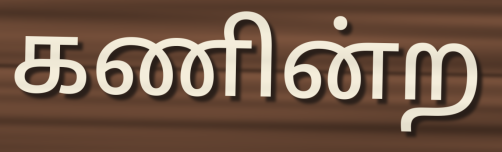
கணின்ற